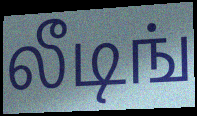
லீடிங்